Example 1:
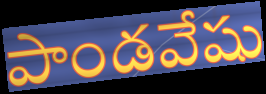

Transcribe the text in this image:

పాండవేషు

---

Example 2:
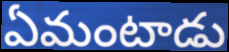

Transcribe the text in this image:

ఏమంటాడు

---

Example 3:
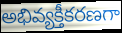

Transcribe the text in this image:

అభివ్యక్తీకరణగా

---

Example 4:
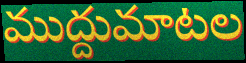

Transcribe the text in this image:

ముద్దుమాటల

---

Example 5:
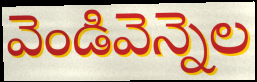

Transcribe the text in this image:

వెండివెన్నెల